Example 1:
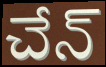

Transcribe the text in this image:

చేన్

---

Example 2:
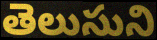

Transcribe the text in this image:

తెలుసుని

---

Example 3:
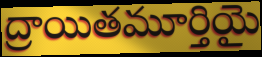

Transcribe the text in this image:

ద్రాయితమూర్తియై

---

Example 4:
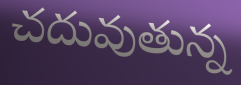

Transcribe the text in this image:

చదువుతున్న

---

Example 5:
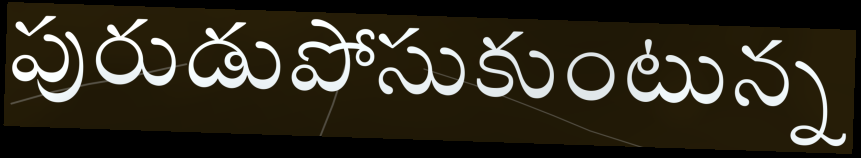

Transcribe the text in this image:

పురుడుపోసుకుంటున్న